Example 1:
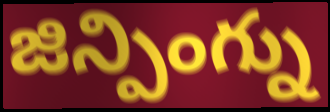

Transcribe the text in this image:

జిన్పింగ్ను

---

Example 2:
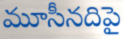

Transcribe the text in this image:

మూసీనదిపై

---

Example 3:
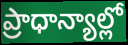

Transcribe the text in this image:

ప్రాధాన్యాల్లో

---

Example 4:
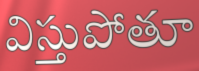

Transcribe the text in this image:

విస్తుపోతూ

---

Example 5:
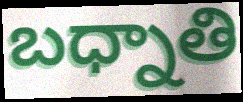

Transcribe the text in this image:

బధ్నాతి